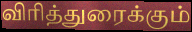
விரித்துரைக்கும்